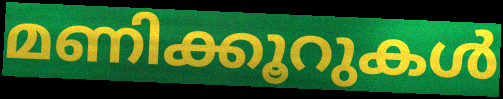
മണിക്കൂറുകൾ